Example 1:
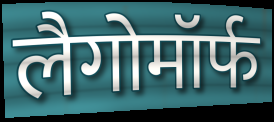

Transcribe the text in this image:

लैगोमॉर्फ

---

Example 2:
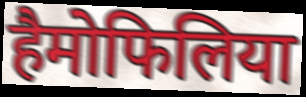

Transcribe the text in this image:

हैमोफिलिया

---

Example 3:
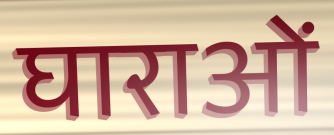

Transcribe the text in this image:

घाराओं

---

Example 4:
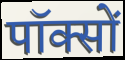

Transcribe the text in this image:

पॉक्सों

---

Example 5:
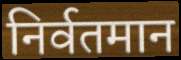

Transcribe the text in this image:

निर्वतमान